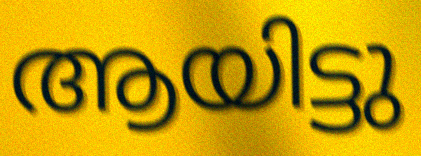
ആയിട്ടു